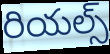
రియల్స్